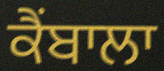
ਕੈਂਬਾਲਾ